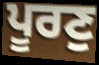
ਪੂਰਣੁ